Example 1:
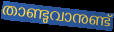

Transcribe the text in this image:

താണ്ടുവാനുണ്ട്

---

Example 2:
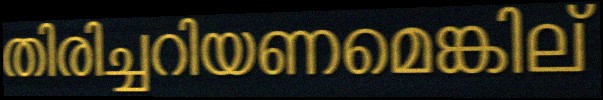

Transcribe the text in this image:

തിരിച്ചറിയണമെങ്കില്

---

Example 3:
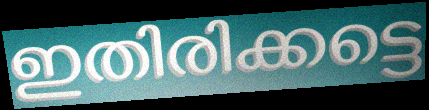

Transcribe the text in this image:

ഇതിരിക്കട്ടെ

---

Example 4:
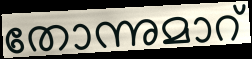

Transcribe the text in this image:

തോന്നുമാറ്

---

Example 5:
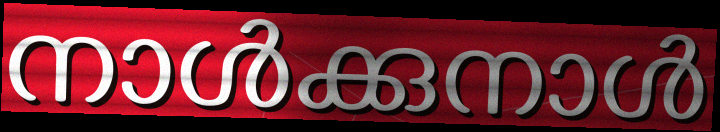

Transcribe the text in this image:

നാൾക്കുനാൾ